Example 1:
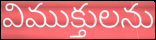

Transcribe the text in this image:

విముక్తులను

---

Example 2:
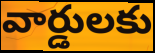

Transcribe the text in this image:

వార్డులకు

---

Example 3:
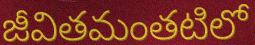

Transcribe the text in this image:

జీవితమంతటిలో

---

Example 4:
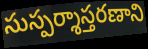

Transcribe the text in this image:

సుస్పర్శాస్తరణాని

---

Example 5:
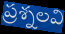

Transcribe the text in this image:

ప్రశ్నలవి